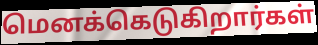
மெனக்கெடுகிறார்கள்